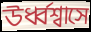
উর্ধ্বশ্বাসে